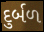
દુર્બળ